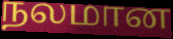
நலமான